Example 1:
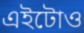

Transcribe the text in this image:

এইটোও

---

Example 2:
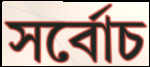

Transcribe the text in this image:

সৰ্বোচ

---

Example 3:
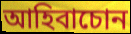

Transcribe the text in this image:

আহিবাচোন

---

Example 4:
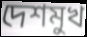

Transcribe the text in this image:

দেশমুখ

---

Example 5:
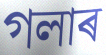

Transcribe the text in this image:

গলাৰ